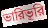
ভারিভূরি